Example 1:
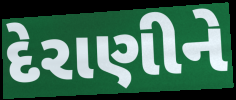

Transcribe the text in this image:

દેરાણીને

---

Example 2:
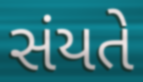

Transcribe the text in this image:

સંયતે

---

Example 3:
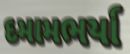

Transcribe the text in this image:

દમામભર્યા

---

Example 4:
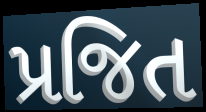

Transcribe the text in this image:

પ્રજિત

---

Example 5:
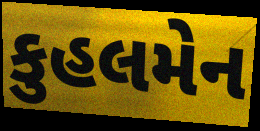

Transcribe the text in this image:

કુહલમેન